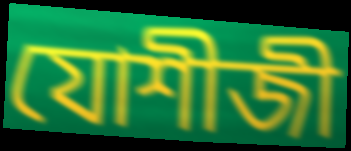
যোশীজী